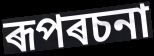
ৰূপৰচনা